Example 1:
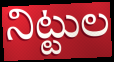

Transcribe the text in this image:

నిట్టుల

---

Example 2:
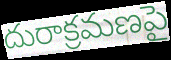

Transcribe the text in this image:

దురాక్రమణపై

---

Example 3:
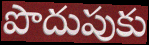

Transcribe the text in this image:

పొదుపుకు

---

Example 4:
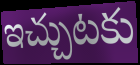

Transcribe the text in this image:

ఇచ్చుటకు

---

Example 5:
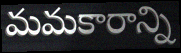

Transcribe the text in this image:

మమకారాన్ని